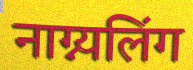
नाग्न्यलिंग